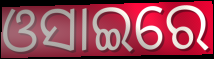
ଓସାଇରେ